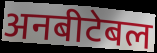
अनबीटेबल